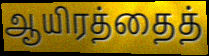
ஆயிரத்தைத்